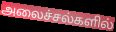
அலைச்சல்களில்